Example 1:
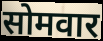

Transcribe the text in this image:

सोमवार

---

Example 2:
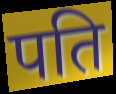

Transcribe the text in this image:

पति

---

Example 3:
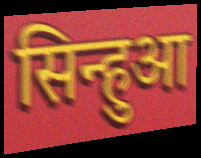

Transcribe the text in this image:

सिन्हुआ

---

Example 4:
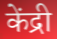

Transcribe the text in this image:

केंद्री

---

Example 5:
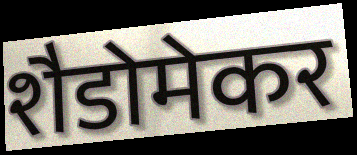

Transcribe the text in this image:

शैडोमेकर